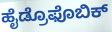
ಹೈಡ್ರೊಫೊಬಿಕ್